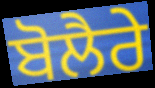
ਬੋਲੈਰੇ